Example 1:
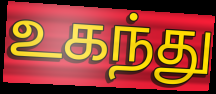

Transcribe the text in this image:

உகந்து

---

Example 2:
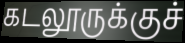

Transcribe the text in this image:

கடலூருக்குச்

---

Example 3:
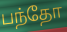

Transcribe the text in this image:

பந்தோ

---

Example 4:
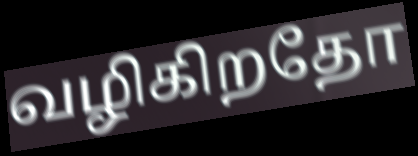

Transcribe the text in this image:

வழிகிறதோ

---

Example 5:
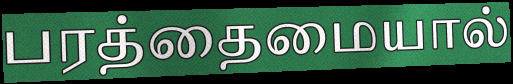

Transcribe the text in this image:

பரத்தைமையால்